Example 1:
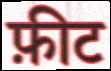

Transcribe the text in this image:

फ़ीट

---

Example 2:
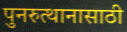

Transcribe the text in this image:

पुनरुत्थानासाठी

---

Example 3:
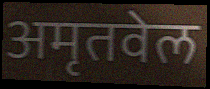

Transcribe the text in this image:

अमृतवेल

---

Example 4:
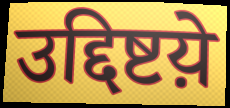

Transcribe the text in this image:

उद्दिष्टय़े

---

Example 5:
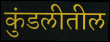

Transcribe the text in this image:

कुंडलीतील